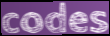
codes